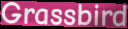
Grassbird